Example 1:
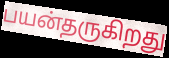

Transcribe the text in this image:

பயன்தருகிறது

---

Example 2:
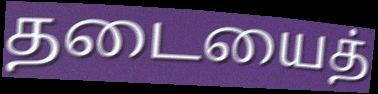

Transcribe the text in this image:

தடையைத்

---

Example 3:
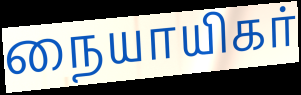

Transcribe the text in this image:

நையாயிகர்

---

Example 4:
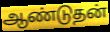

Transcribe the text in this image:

ஆண்டுதன்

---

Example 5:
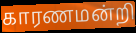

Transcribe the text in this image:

காரணமன்றி